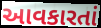
આવકારતાં